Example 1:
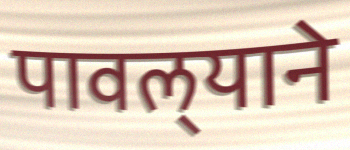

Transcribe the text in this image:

पावल्याने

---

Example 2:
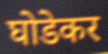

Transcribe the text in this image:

घोडेकर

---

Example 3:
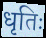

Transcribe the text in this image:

धृतिः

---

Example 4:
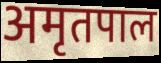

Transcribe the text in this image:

अमृतपाल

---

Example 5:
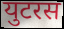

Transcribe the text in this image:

युटरस